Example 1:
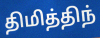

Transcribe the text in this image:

திமித்திந்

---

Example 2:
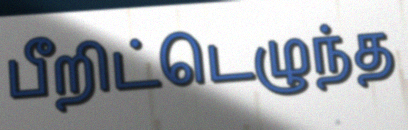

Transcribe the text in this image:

பீறிட்டெழுந்த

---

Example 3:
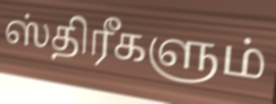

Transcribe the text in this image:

ஸ்திரீகளும்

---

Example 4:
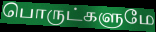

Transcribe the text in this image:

பொருட்களுமே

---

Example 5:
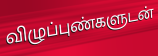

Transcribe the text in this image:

விழுப்புண்களுடன்